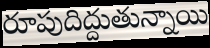
రూపుదిద్దుతున్నాయి